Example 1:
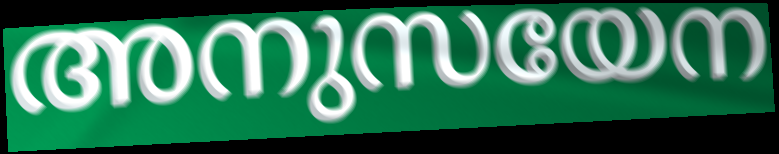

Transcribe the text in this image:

അനുസയേന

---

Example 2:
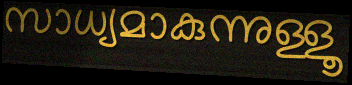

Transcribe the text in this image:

സാധ്യമാകുന്നുള്ളൂ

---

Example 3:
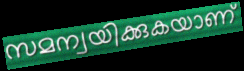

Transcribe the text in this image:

സമന്വയിക്കുകയാണ്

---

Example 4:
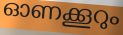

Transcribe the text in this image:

ഓണക്കൂറും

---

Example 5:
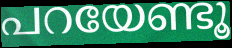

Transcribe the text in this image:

പറയേണ്ടൂ